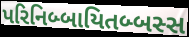
પરિનિબ્બાયિતબ્બસ્સ